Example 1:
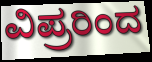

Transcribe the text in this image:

ವಿಪ್ರರಿಂದ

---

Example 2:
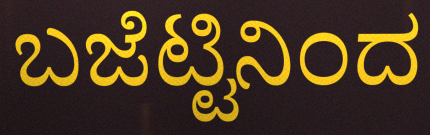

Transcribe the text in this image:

ಬಜೆಟ್ಟಿನಿಂದ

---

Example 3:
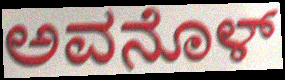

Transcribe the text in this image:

ಅವನೊಳ್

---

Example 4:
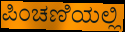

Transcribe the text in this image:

ಪಿಂಚಣಿಯಲ್ಲಿ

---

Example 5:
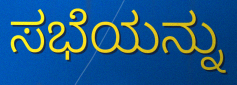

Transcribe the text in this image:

ಸಭೆಯನ್ನು